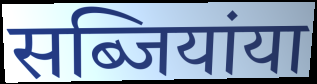
सब्जियांया